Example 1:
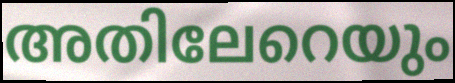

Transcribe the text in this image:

അതിലേറെയും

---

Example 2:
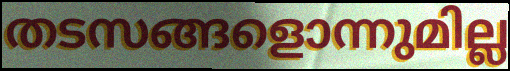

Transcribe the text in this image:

തടസങ്ങളൊന്നുമില്ല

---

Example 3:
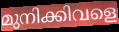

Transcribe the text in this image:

മുനിക്കിവളെ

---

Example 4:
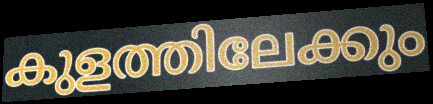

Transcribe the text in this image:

കുളത്തിലേക്കും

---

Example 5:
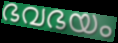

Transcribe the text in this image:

ഭവഭയം